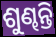
ଶୁଣ୍ଢନ୍ତି